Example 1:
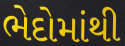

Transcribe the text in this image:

ભેદોમાંથી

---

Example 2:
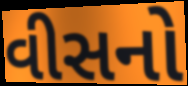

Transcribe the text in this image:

વીસનો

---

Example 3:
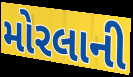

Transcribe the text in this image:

મોરલાની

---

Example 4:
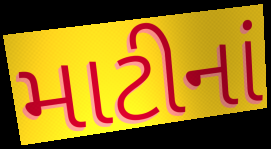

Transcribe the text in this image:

માટીનાં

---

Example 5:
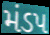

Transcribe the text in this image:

મંડપ